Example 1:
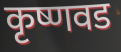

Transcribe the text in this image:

कृष्णवड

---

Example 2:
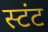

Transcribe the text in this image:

स्टंट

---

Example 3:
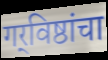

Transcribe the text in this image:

गर्विष्ठांचा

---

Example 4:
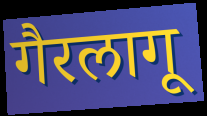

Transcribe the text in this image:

गैरलागू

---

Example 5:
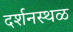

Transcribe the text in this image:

दर्शनस्थळ